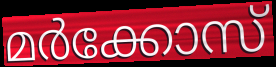
മർക്കോസ്